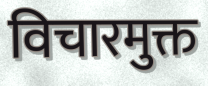
विचारमुक्त